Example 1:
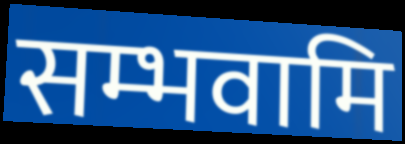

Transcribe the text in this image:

सम्भवामि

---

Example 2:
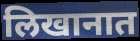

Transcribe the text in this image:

लिखानात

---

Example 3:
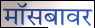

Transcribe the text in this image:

मॉसबावर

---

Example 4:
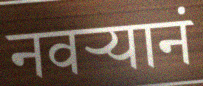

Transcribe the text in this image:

नवऱ्यानं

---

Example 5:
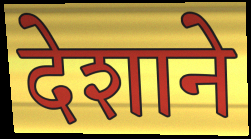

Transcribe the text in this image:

देशाने